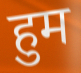
हुम